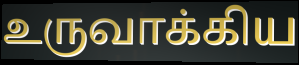
உருவாக்கிய